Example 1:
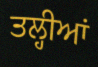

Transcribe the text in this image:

ਤਲ੍ਹੀਆਂ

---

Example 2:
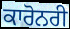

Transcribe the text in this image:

ਕਾਰੋਨਰੀ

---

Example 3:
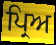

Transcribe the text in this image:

ਪ੍ਰਿਅ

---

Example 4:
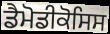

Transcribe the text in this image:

ਡੈਮੋਡੀਕੋਸਿਸ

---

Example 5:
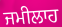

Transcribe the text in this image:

ਜਮੀਲਾਹ